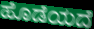
ಹೊಡೆಯದೆ